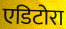
एडिटोरा